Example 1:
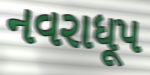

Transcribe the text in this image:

નવરાધૂપ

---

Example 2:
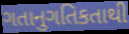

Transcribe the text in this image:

ગતાનુગતિકતાથી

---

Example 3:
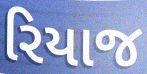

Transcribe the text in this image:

રિયાજ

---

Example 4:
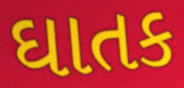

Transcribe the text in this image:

ઘાતક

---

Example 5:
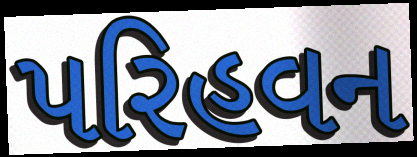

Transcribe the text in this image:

પરિહવન